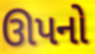
ઊપનો